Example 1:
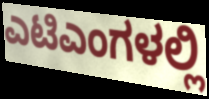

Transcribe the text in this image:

ಎಟಿಎಂಗಳಲ್ಲಿ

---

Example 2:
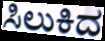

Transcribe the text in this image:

ಸಿಲುಕಿದ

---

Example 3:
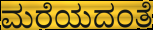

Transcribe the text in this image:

ಮರೆಯದಂತೆ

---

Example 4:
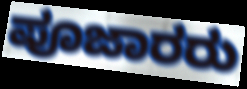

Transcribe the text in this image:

ಪೂಜಾರರು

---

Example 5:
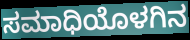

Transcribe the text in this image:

ಸಮಾಧಿಯೊಳಗಿನ